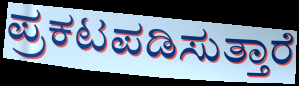
ಪ್ರಕಟಪಡಿಸುತ್ತಾರೆ